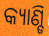
କ୍ୟାଣ୍ଡି